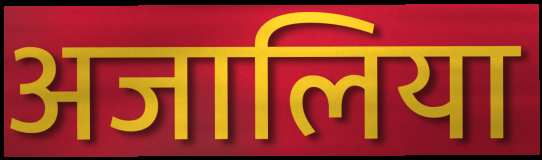
अजालिया